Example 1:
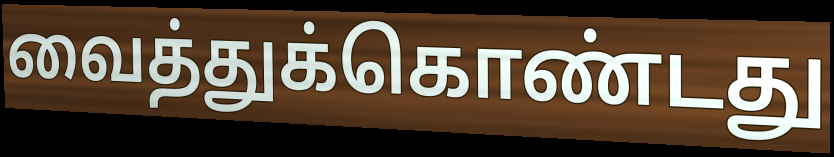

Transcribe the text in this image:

வைத்துக்கொண்டது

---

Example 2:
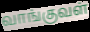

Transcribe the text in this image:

வாங்குவள்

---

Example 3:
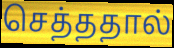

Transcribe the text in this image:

செத்ததால்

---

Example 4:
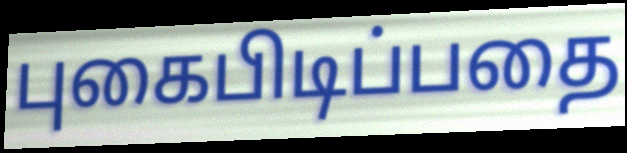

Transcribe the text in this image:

புகைபிடிப்பதை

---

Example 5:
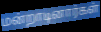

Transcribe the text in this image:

மன்றாடினார்கள்